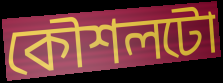
কৌশলটো